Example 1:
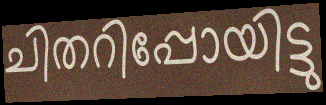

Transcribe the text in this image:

ചിതറിപ്പോയിട്ടു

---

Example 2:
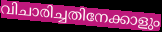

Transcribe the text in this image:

വിചാരിച്ചതിനേക്കാളും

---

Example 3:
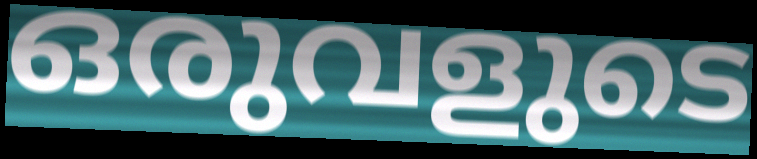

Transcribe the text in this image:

ഒരുവളുടെ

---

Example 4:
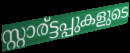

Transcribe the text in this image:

സ്റ്റാര്ട്ടപ്പുകളുടെ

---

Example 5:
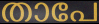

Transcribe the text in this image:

താപേ